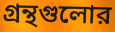
গ্রন্থগুলোর